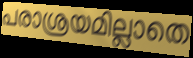
പരാശ്രയമില്ലാതെ